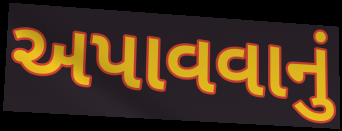
અપાવવાનું